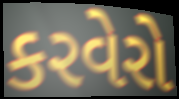
કરવેરો